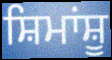
ਸ਼ਿਮਾਂਸ਼ੂ